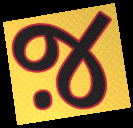
જ઼